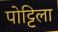
पोट्टिला